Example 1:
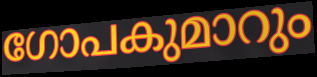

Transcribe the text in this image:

ഗോപകുമാറും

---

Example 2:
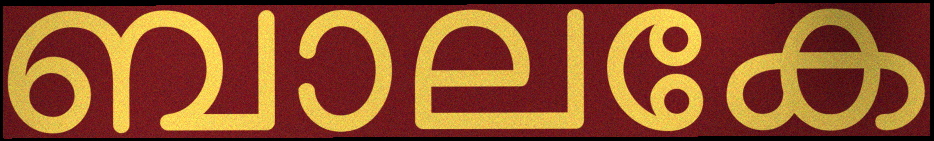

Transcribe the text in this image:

ബാലകേ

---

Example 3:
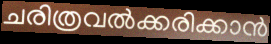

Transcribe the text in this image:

ചരിത്രവൽക്കരിക്കാൻ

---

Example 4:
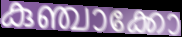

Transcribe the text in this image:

കുഞ്ചാക്കോ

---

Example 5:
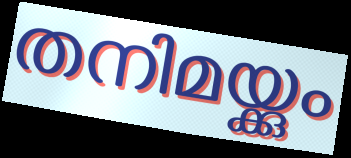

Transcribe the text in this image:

തനിമയ്ക്കും